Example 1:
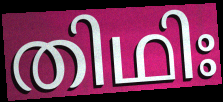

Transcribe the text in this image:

തിഥിഃ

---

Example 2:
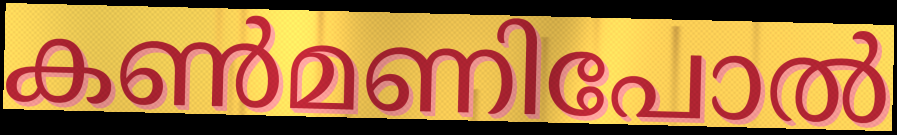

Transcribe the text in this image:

കൺമണിപോൽ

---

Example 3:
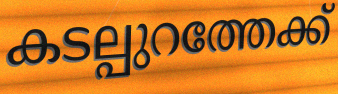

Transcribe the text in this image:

കടല്പുറത്തേക്ക്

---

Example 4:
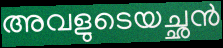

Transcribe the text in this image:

അവളുടെയച്ഛൻ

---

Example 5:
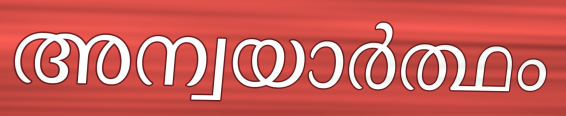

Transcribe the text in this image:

അന്വയാർത്ഥം